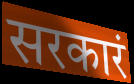
सरकारं